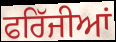
ਫਰਿੱਜੀਆਂ